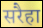
सरैहा